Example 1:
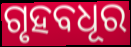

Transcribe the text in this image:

ଗୃହବଧୂର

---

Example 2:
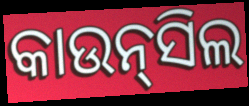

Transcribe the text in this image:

କାଉନ୍‍ସିଲ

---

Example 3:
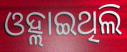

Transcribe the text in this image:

ଓହ୍ଲାଇଥିଲି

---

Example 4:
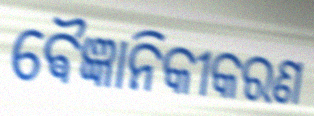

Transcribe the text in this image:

ଵୈଜ୍ଞାନିକୀକରଣ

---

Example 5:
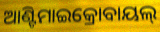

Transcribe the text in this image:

ଆଣ୍ଟିମାଇକ୍ରୋବାୟଲ୍